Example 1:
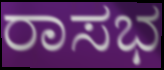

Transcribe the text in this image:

ರಾಸಭ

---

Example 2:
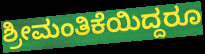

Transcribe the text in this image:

ಶ್ರೀಮಂತಿಕೆಯಿದ್ದರೂ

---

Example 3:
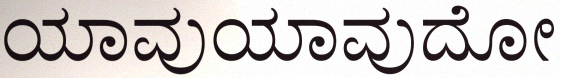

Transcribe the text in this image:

ಯಾವುಯಾವುದೋ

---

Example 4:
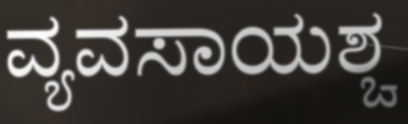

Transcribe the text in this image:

ವ್ಯವಸಾಯಶ್ಚ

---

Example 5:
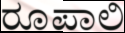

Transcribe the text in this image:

ರೂಪಾಲಿ